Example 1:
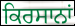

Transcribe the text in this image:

ਕਿਰਸਾਨਾਂ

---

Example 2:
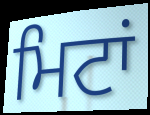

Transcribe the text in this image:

ਮਿਟਾਂ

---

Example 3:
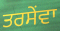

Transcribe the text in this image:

ਤਰਸੇਂਵਾ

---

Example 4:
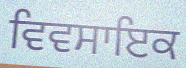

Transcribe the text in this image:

ਵਿਵਸਾਇਕ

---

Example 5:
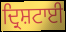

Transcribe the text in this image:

ਦ੍ਰਿਸ਼ਟਾਈ